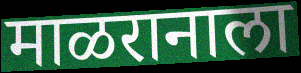
माळरानाला